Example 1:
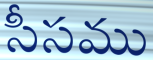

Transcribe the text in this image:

సీసము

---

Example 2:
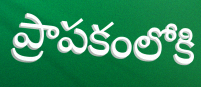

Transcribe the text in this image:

ప్రాపకంలోకి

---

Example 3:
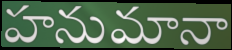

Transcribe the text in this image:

హనుమానా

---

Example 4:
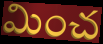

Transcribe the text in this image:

మించ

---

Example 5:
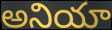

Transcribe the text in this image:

అనియా